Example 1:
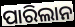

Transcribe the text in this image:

ପାରିଲାନ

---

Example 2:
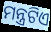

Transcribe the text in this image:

ମନ୍ତ୍ରଟିଏ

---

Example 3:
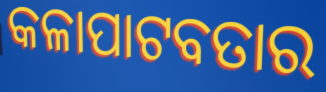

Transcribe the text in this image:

କଳାପାଟବତାର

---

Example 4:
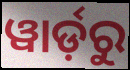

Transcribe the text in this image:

ୱାର୍ଡ଼ରୁ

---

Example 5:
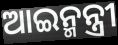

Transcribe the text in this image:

ଆଇନ୍ମନ୍ତ୍ରୀ